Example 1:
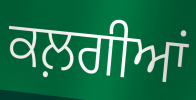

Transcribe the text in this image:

ਕਲ਼ਗੀਆਂ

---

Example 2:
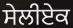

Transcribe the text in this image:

ਸੇਲੀਏਕ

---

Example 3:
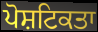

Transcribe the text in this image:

ਪੋਸ਼ਟਿਕਤਾ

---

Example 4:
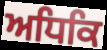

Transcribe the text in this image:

ਅਧਿਕਿ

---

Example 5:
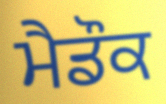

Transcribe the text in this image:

ਮੈਡੌਕ